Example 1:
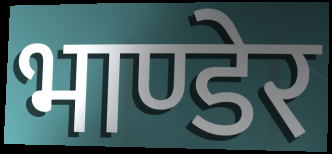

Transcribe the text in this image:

भाण्डेर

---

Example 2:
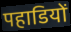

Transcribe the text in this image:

पहाडियों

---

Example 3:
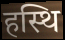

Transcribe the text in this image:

हस्थि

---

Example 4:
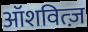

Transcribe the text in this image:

ऑशवित्ज़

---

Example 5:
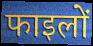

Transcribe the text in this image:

फाइलों